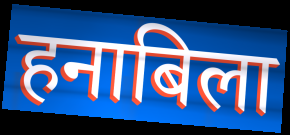
हनाबिला